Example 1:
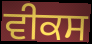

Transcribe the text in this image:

ਵੀਕਸ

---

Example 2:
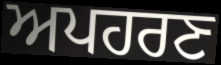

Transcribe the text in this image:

ਅਪਹਰਣ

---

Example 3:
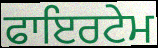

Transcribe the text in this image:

ਫਾਇਰਟੇਮ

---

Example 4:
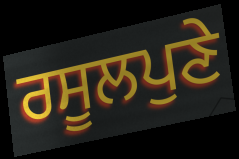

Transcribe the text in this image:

ਰਸੂਲਪੁਣੇ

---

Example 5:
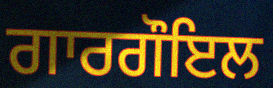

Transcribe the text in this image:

ਗਾਰਗੌਇਲ